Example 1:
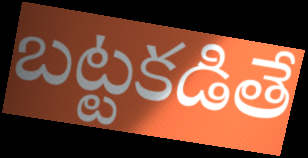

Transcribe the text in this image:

బట్టకడితే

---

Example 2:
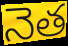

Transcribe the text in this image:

నెత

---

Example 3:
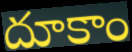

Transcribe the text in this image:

దూకాం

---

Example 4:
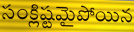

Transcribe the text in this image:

సంక్లిష్టమైపోయిన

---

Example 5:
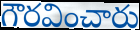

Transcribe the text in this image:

గౌరవించారు